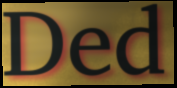
Ded